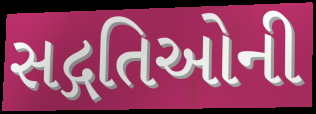
સદ્ગતિઓની